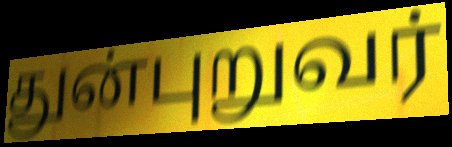
துன்புறுவர்